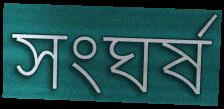
সংঘৰ্ষ